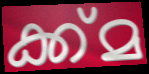
ക്ക്മ